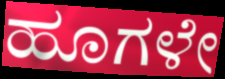
ಹೂಗಳೇ